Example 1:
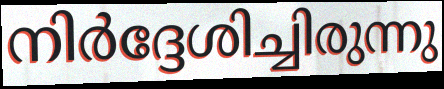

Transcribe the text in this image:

നിർദ്ദേശിച്ചിരുന്നു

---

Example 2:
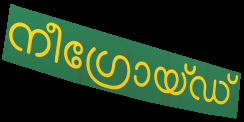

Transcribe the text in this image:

നീഗ്രോയ്ഡ്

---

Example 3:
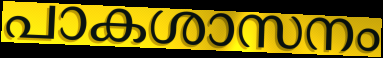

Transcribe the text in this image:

പാകശാസനം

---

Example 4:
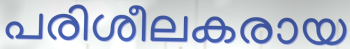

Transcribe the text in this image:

പരിശീലകരായ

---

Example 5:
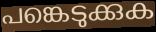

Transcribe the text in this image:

പങ്കെടുക്കുക